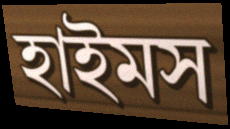
হাইমস